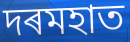
দৰমহাত